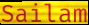
Sailam